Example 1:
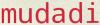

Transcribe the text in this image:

mudadi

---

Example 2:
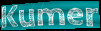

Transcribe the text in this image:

Kumer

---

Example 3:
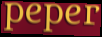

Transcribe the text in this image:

peper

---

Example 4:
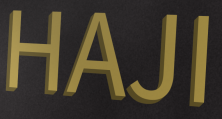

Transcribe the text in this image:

HAJI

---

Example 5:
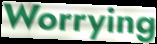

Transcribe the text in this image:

Worrying